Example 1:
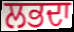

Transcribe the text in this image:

ਲਭਦਾ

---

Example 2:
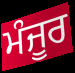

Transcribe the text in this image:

ਮੰਜੂਰ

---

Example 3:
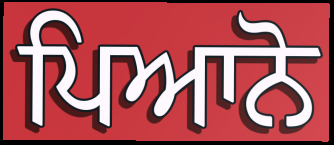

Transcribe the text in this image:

ਪਿਆਨੋ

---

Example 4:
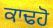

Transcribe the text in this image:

ਕਾਢਹੋ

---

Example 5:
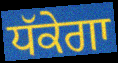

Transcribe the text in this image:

ਧੱਕੇਗਾ